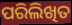
ପରିଲିଖିତ